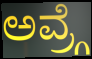
ಅವ್ರ್ಗೆ